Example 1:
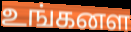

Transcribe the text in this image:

உங்கனள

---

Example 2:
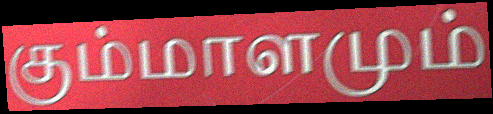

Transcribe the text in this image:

கும்மாளமும்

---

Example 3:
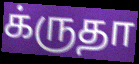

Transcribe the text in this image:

க்ருதா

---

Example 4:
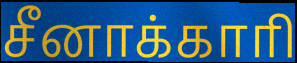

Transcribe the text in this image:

சீனாக்காரி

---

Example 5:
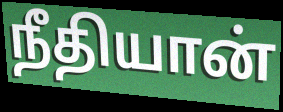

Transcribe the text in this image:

நீதியான்